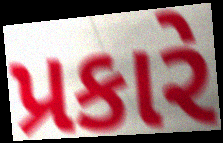
પ્રકારે